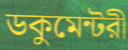
ডকুমেন্টরী